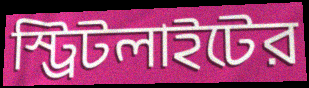
স্ট্রিটলাইটের